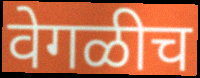
वेगळीच